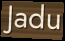
Jadu